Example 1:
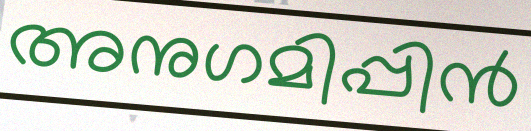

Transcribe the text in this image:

അനുഗമിപ്പിൻ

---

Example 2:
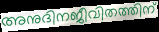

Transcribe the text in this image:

അനുദിനജീവിതത്തിന്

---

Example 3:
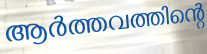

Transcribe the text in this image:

ആർത്തവത്തിന്റെ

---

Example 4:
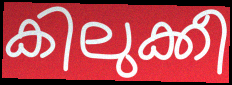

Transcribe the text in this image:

കിലുക്കീ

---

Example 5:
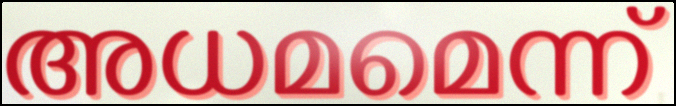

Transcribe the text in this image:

അധമമെന്ന്